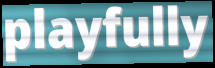
playfully